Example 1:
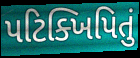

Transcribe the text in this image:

પટિક્ખિપિતું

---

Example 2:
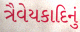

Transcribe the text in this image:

ત્રૈવેયકાદિનું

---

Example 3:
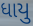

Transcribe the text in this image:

ધાયુ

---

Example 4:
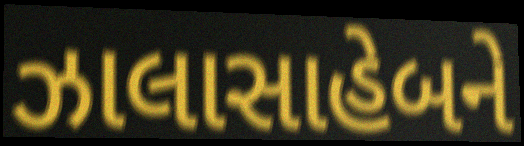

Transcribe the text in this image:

ઝાલાસાહેબને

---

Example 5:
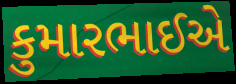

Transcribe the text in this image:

કુમારભાઈએ